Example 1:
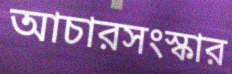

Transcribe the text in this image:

আচারসংস্কার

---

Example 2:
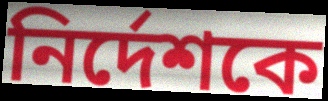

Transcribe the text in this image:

নির্দেশকে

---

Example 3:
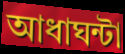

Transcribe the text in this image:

আধাঘন্টা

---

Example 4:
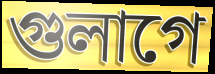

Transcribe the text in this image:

গুলাগে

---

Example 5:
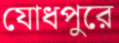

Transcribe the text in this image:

যোধপুরে